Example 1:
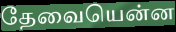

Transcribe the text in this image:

தேவையென்ன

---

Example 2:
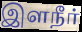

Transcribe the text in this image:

இளநீர்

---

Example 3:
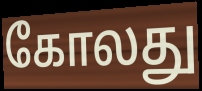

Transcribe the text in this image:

கோலது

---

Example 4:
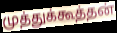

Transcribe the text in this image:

முத்துக்கூத்தன்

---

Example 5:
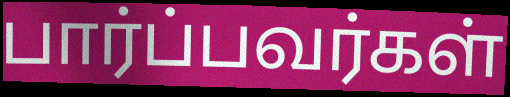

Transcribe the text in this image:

பார்ப்பவர்கள்